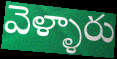
వెళ్ళారు